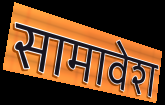
सामावेश